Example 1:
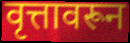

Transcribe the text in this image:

वृत्तावरून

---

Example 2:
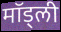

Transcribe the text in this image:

मॉड्ली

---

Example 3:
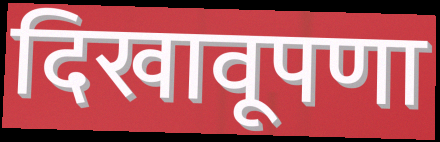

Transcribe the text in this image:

दिखावूपणा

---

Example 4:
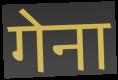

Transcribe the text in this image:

गेना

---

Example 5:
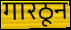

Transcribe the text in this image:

गारठून